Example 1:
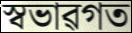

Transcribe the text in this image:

স্বভাৱগত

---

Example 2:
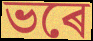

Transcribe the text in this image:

ভৰে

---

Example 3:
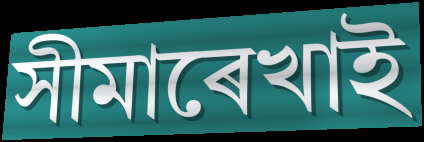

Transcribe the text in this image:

সীমাৰেখাই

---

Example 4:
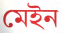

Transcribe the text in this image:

মেইন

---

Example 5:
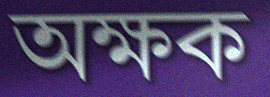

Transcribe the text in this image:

অক্ষক